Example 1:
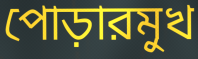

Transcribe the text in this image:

পোড়ারমুখ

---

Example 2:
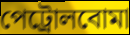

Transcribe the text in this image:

পেট্রোলবোমা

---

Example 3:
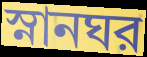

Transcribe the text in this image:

স্নানঘর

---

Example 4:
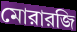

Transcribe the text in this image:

মোরারজি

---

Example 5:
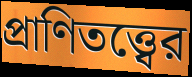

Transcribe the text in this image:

প্রাণিতত্ত্বের